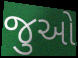
જુઓ